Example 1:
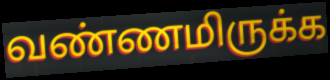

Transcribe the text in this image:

வண்ணமிருக்க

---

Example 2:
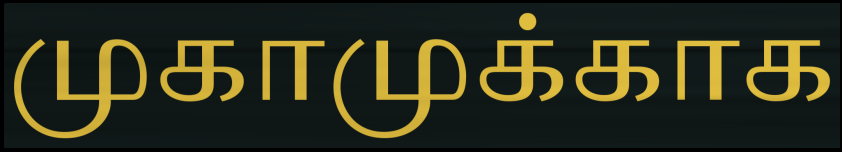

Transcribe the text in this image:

முகாமுக்காக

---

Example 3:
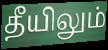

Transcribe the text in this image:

தீயிலும்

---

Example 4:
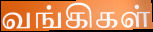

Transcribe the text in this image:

வங்கிகள்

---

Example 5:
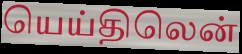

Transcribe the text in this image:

யெய்திலென்